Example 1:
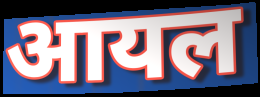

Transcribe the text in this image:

आयल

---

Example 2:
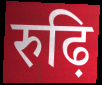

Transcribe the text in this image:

रुढ़ि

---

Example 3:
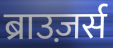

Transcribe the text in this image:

ब्राउज़र्स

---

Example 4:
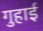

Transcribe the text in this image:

गुहाई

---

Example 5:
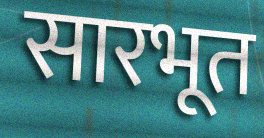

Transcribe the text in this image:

सारभूत